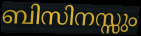
ബിസിനസ്സും